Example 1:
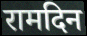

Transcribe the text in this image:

रामदिन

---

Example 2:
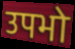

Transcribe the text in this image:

उपभो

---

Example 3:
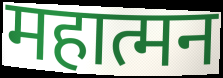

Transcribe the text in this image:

महात्मन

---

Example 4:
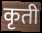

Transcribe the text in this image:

कृती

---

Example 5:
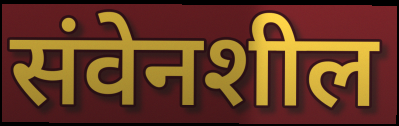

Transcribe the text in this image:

संवेनशील